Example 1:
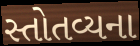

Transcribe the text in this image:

સ્તોતવ્યના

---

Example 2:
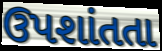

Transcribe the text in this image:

ઉપશાંતતા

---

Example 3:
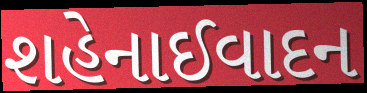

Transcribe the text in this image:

શહેનાઈવાદન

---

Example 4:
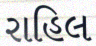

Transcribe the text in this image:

રાહિલ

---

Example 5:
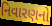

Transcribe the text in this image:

નિવારણનો